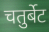
चतुर्बेट